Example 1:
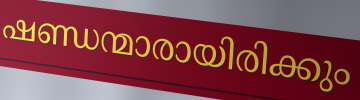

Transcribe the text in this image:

ഷണ്ഡന്മാരായിരിക്കും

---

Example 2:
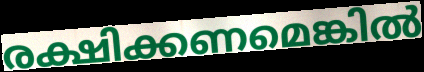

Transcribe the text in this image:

രക്ഷിക്കണമെങ്കിൽ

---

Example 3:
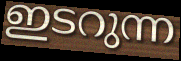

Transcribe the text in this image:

ഇടറുന്ന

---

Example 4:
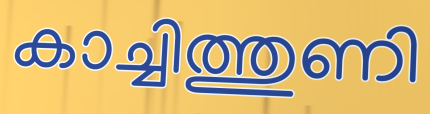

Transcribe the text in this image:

കാച്ചിത്തുണി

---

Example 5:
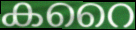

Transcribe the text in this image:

കറൈ